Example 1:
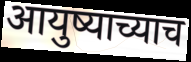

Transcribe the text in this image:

आयुष्याच्याच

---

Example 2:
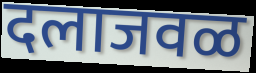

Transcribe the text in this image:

दलाजवळ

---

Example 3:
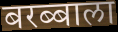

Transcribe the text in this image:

बरब्बाला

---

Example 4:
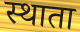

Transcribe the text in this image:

स्थाता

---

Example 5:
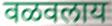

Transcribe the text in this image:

वळवलाय